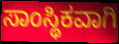
ಸಾಂಸ್ಥಿಕವಾಗಿ